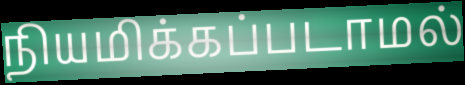
நியமிக்கப்படாமல்